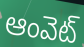
ఆంవెట్